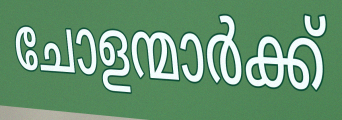
ചോളന്മാർക്ക്